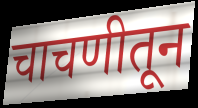
चाचणीतून